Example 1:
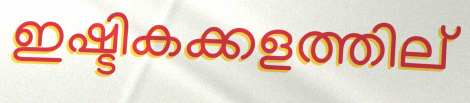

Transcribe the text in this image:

ഇഷ്ടികക്കളത്തില്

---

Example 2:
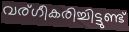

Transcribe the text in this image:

വര്ഗീകരിച്ചിട്ടുണ്ട്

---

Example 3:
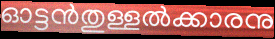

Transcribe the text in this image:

ഓട്ടൻതുള്ളൽക്കാരനു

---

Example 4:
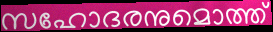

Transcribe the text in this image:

സഹോദരനുമൊത്ത്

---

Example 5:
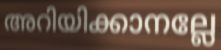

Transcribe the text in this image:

അറിയിക്കാനല്ലേ